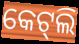
କେଟ୍‍ଲି